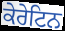
ਕੇਰੇਟਿਨ